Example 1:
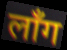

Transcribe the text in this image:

लाँग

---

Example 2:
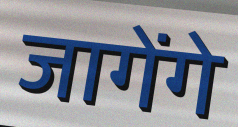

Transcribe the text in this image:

जागेंगे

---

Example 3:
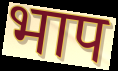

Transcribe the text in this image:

भाप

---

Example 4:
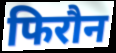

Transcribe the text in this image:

फिरौन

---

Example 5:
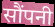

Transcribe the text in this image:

सौंपनी